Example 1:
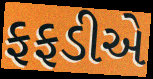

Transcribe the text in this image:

ફફડીએ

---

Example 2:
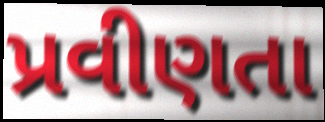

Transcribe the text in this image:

પ્રવીણતા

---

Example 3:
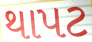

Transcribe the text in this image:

થાપટ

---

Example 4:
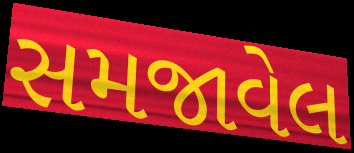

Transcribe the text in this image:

સમજાવેલ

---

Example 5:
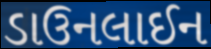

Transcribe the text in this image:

ડાઉનલાઈન